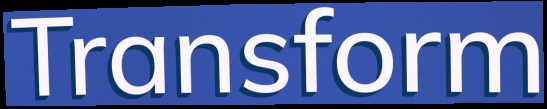
Transform